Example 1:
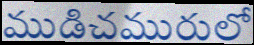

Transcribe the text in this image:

ముడిచమురులో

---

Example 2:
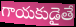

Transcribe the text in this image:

గాయకుడైతే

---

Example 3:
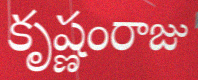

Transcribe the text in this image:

కృష్ణంరాజు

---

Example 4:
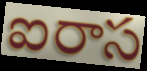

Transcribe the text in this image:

ఐరాస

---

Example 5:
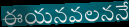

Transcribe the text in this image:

ఈయనవలననే